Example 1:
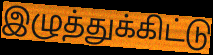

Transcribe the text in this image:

இழுத்துக்கிட்டு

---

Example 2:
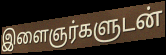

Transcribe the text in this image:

இளைஞர்களுடன்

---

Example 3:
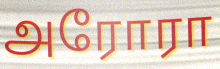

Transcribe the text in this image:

அரோரா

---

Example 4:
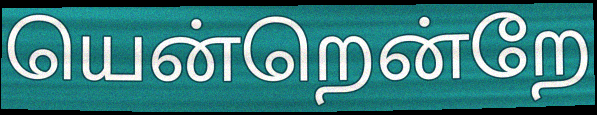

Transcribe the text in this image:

யென்றென்றே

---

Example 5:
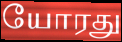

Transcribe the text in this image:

யோரது